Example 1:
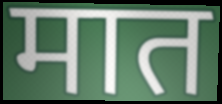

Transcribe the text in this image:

मात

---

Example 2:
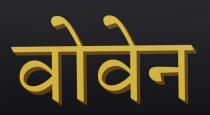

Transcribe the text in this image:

वोवेन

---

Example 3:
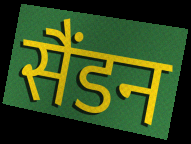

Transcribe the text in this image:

सैंडन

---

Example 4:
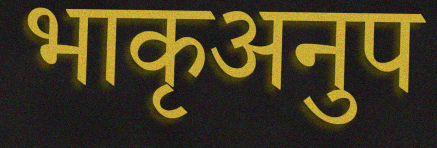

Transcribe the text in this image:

भाकृअनुप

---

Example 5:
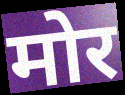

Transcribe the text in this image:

मोर